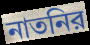
নাতনির